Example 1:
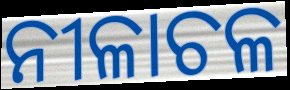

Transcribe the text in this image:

ନୀଳାଚଳ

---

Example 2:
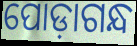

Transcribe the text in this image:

ପୋଡ଼ାଗନ୍ଧ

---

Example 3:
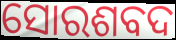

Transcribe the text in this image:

ସୋରଶବଦ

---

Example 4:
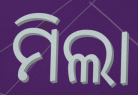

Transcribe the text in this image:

ମିଲା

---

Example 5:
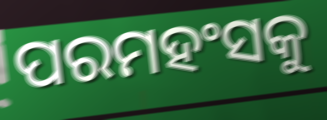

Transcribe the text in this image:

ପରମହଂସକୁ